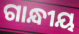
ଗାନ୍ଧୀୟ